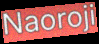
Naoroji